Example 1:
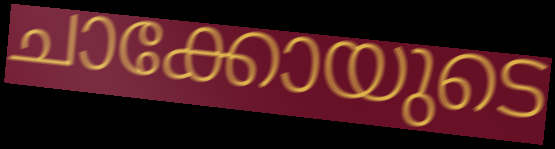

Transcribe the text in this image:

ചാക്കോയുടെ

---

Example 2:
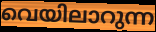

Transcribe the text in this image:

വെയിലാറുന്ന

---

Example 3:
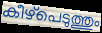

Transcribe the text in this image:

കീഴ്പെടുത്തും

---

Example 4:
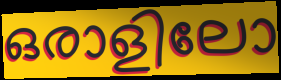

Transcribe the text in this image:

ഒരാളിലോ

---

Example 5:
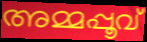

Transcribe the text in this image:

അമ്മപ്പൂവ്